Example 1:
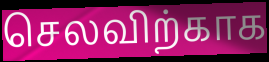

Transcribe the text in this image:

செலவிற்காக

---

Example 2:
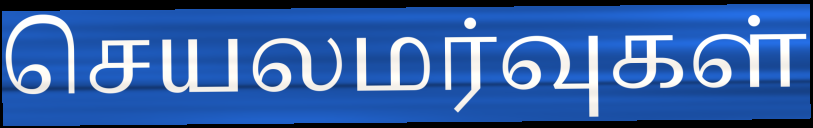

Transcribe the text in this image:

செயலமர்வுகள்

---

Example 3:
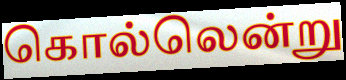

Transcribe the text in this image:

கொல்லென்று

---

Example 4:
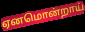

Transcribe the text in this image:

ஏனமொன்றாய்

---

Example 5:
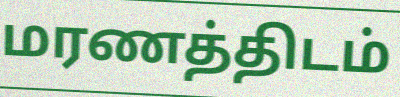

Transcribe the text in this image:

மரணத்திடம்